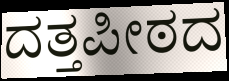
ದತ್ತಪೀಠದ